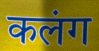
कलंग